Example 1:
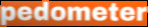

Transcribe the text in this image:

pedometer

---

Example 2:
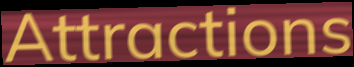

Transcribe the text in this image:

Attractions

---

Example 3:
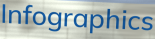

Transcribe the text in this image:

Infographics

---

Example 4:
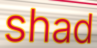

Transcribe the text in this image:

shad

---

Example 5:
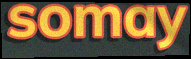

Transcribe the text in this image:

somay